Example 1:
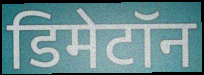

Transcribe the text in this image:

डिमेटॉन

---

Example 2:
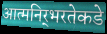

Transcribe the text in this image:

आत्मनिर्भरतेकडे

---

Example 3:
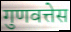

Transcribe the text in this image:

गुणवत्तेस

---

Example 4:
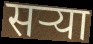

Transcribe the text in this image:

सऱ्या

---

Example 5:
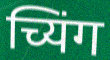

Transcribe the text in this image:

च्यिंग